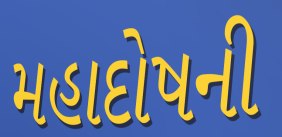
મહાદોષની